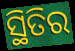
ସ୍ଥିତିର